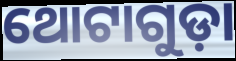
ଥୋଟାଗୁଡ଼ା